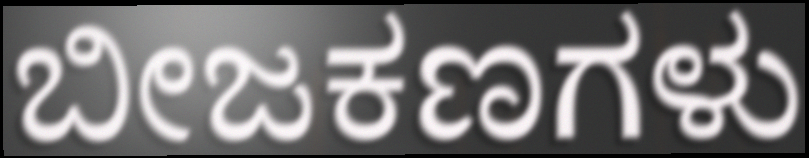
ಬೀಜಕಣಗಳು